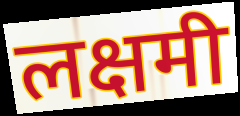
लक्षमी